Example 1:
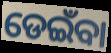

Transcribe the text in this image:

ଡେଇଁବା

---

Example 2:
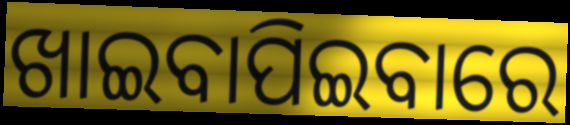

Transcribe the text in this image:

ଖାଇବାପିଇବାରେ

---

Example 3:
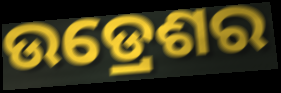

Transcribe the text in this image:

ଉଡ୍ରେଶର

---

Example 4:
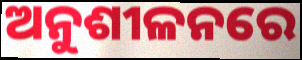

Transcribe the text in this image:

ଅନୁଶୀଳନରେ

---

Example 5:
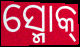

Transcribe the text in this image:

ସ୍ମୋକ୍